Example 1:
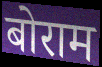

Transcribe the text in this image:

बोराम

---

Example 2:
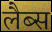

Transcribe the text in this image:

लैब्स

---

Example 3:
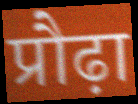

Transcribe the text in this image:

प्रौढ़ा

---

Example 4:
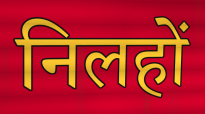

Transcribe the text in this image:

निलहों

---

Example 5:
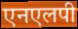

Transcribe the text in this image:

एनएलपी